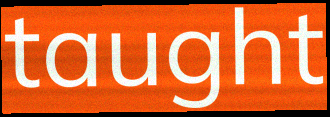
taught